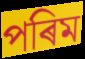
পৰিম